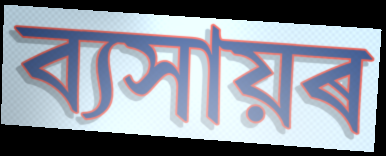
ব্যসায়ৰ